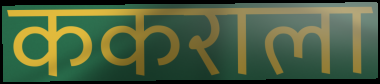
ककराला